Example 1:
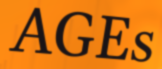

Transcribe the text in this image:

AGEs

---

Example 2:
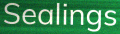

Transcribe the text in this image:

Sealings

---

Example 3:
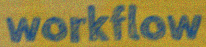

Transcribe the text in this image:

workflow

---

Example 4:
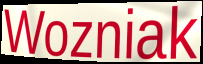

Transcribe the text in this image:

Wozniak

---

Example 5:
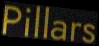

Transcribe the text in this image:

Pillars